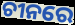
ଚୀନରେ